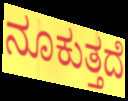
ನೂಕುತ್ತದೆ